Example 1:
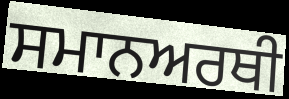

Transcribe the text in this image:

ਸਮਾਨਅਰਥੀ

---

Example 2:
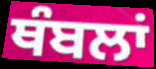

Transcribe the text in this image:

ਥੰਬਲਾਂ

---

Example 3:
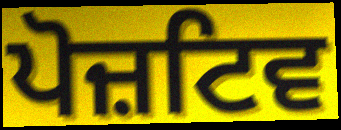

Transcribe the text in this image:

ਪੋਜ਼ਟਿਵ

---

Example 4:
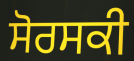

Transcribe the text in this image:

ਸੋਰਸਕੀ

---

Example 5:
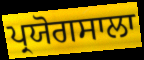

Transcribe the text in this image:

ਪ੍ਰਯੋਗਸਾਲਾ